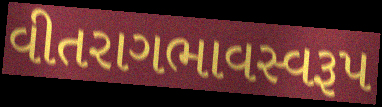
વીતરાગભાવસ્વરૂપ